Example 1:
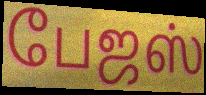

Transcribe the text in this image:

பேஜஸ்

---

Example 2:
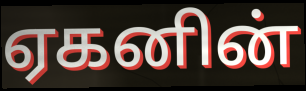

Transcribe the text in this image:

ஏகனின்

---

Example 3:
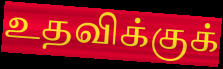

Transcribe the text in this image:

உதவிக்குக்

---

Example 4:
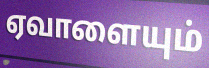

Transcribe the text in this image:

ஏவாளையும்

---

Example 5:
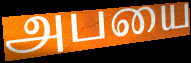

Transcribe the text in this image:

அபயை